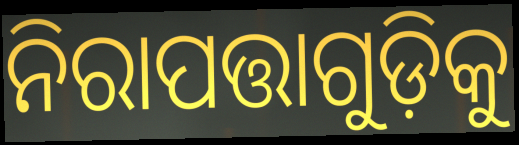
ନିରାପତ୍ତାଗୁଡ଼ିକୁ